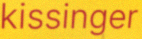
kissinger